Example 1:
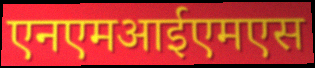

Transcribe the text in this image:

एनएमआईएमएस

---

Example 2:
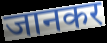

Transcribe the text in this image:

जानकर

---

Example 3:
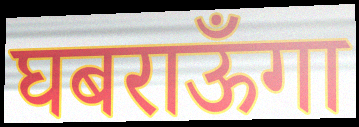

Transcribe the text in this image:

घबराऊँगा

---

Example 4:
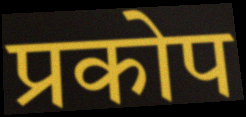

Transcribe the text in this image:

प्रकोप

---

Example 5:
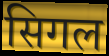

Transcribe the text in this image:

सिगल